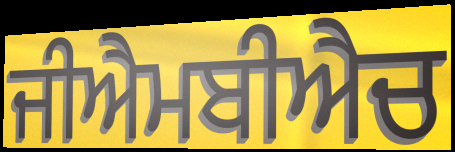
ਜੀਐਮਬੀਐਚ